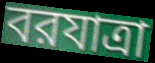
বরযাত্রা